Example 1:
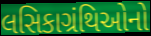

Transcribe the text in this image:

લસિકાગ્રંથિઓનો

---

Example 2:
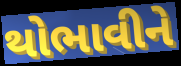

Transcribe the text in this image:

થોભાવીને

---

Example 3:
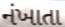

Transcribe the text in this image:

નંખાતા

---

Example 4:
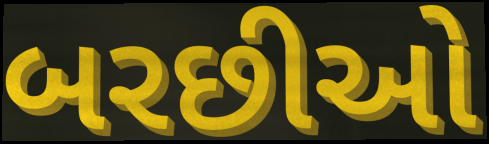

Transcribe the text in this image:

બરછીઓ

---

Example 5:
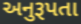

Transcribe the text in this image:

અનુરૂપતા